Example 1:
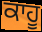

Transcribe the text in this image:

ਕਾਹੂ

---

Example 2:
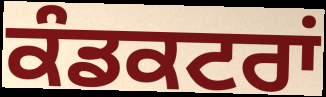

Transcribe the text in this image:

ਕੰਡਕਟਰਾਂ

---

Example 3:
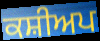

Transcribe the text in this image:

ਕਸ਼ੀਅਪ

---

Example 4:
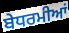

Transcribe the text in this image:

ਬੇਧਰਮੀਆਂ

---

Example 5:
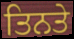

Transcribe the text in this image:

ਤਿਨਤੇ